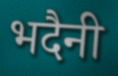
भदैनी